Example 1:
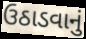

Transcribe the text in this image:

ઉઠાડવાનું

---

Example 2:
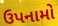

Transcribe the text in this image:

ઉપનામો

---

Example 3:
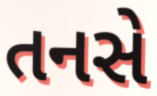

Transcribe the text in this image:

તનસે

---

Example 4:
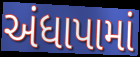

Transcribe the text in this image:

અંધાપામાં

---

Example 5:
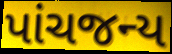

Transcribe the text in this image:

પાંચજન્ય